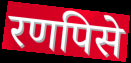
रणपिसे